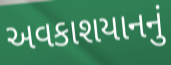
અવકાશયાનનું